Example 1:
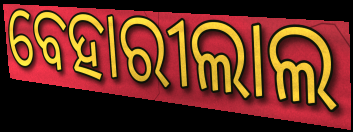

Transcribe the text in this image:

ବେହାରୀଲାଲ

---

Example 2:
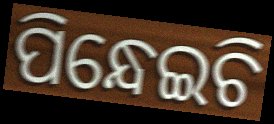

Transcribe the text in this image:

ପିନ୍ଧେଇଚି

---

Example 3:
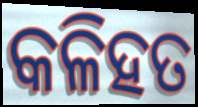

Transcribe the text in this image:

କଳିହତ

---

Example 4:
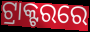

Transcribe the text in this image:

ଟ୍ରାକ୍ଟରରେ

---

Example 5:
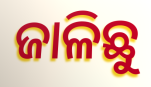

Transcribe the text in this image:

ଜାଳିଛୁ